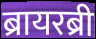
ब्रायरब्री